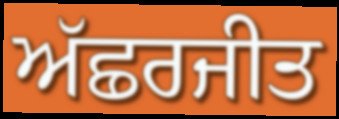
ਅੱਛਰਜੀਤ